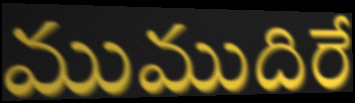
ముముదిరే